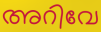
അറിവേ